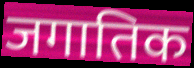
जगातिक